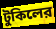
টুকিলের